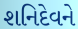
શનિદેવને